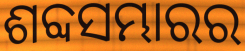
ଶବ୍ଦସମ୍ଭାରର